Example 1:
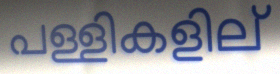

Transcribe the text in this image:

പള്ളികളില്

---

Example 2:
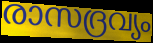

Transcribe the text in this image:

രാസദ്രവ്യം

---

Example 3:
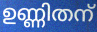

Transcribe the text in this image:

ഉണ്ണിതന്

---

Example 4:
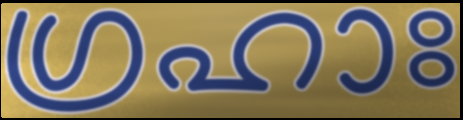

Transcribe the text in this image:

ഗ്രഹാഃ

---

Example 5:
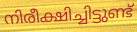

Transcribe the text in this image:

നിരീക്ഷിച്ചിട്ടുണ്ട്